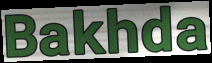
Bakhda